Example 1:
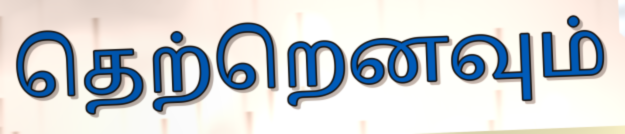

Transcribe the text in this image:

தெற்றெனவும்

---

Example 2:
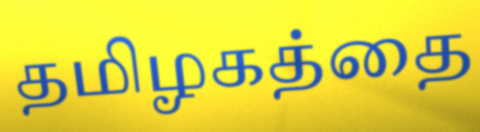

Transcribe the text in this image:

தமிழகத்தை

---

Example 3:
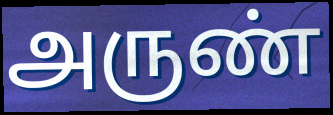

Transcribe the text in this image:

அருண்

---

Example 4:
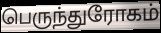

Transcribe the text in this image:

பெருந்துரோகம்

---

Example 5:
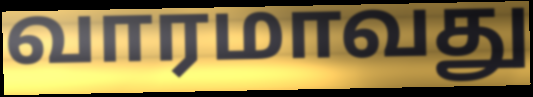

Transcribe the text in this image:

வாரமாவது